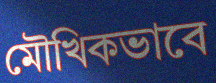
মৌখিকভাবে